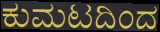
ಕುಮಟದಿಂದ